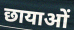
छायाओं